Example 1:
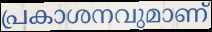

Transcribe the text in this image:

പ്രകാശനവുമാണ്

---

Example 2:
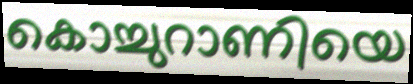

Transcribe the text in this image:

കൊച്ചുറാണിയെ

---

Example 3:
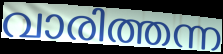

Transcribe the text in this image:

വാരിത്തന്ന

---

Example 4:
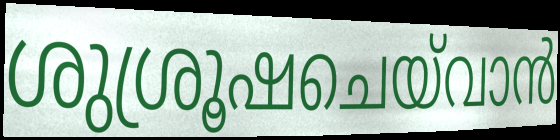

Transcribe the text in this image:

ശുശ്രൂഷചെയ്‌വാൻ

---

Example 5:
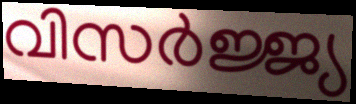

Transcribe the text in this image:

വിസർജ്ജ്യ